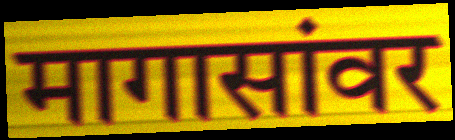
मागासांवर